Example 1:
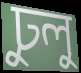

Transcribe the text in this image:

ঢুলু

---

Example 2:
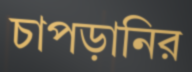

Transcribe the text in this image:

চাপড়ানির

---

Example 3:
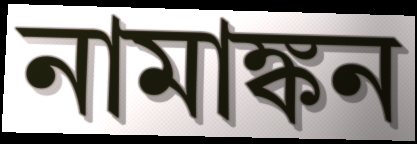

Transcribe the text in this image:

নামাঙ্কন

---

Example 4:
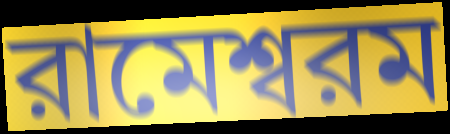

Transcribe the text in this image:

রামেশ্বরম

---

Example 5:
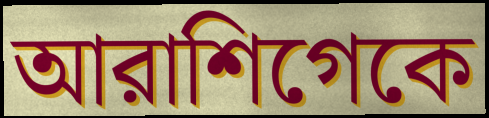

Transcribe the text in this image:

আরাশিগেকে